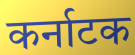
कर्नाटक